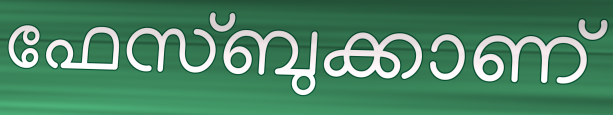
ഫേസ്ബുക്കാണ്